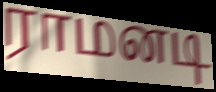
ராமனடி